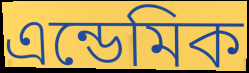
এন্ডেমিক